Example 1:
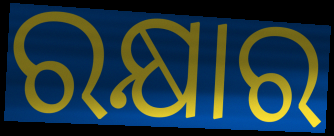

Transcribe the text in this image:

ରକ୍ଷାର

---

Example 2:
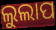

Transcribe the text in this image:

ଲୁଲାପ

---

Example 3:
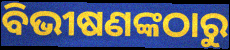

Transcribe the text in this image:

ବିଭୀଷଣଙ୍କଠାରୁ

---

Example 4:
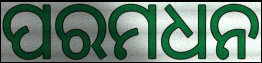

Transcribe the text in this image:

ପରମଧନ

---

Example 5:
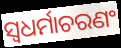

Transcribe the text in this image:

ସ୍ୱଧର୍ମାଚରଣଂ